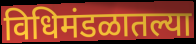
विधिमंडळातल्या